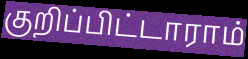
குறிப்பிட்டாராம்